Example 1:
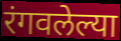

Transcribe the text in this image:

रंगवलेल्या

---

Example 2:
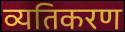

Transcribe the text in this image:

व्यतिकरण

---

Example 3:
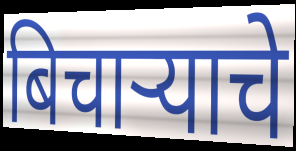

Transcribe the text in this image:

बिचाऱ्याचे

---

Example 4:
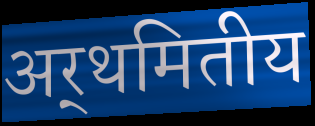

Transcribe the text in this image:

अर्थमितीय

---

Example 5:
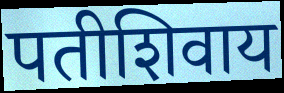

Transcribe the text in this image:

पतीशिवाय